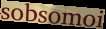
sobsomoi